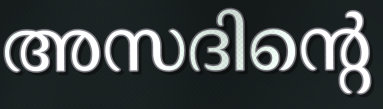
അസദിന്റെ